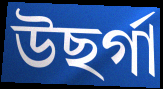
উছৰ্গা